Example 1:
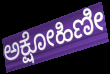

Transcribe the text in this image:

ಅಕ್ಷೋಹಿಣೀ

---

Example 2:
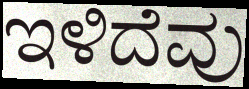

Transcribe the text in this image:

ಇಳಿದೆವು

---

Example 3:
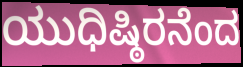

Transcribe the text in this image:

ಯುಧಿಷ್ಠಿರನೆಂದ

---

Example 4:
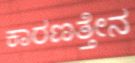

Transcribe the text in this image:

ಕಾರಣತ್ತೇನ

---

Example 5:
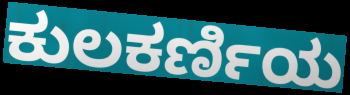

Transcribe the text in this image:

ಕುಲಕರ್ಣಿಯ